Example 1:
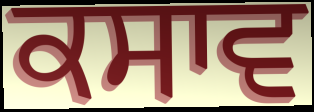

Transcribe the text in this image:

ਕਸਾਵ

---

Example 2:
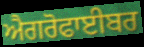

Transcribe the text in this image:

ਐਗਰੋਫਾਈਬਰ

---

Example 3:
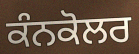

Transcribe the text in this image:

ਕੰਨਕੋਲਰ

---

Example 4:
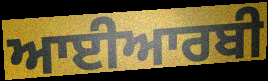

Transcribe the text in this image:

ਆਈਆਰਬੀ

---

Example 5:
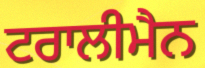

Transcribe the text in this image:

ਟਰਾਲੀਮੈਨ